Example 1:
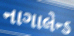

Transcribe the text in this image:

નાગાલેન્ડ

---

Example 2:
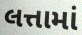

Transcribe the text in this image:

લત્તામાં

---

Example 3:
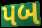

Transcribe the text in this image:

પબ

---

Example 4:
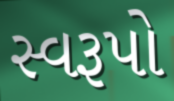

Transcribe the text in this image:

સ્વરૂપો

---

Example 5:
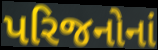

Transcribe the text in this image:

પરિજનોનાં